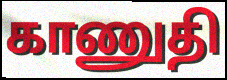
காணுதி